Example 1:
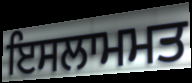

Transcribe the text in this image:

ਇਸਲਾਮਮਤ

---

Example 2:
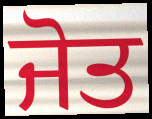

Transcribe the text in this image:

ਜੋਤ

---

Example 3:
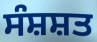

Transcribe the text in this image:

ਸੰਸ਼ਸ਼ਤ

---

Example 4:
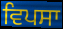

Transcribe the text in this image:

ਵਿਪਸਾ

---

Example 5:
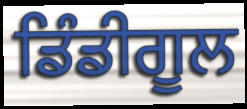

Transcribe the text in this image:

ਡਿੰਡੀਗੂਲ